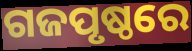
ଗଜପୃଷ୍ଠରେ